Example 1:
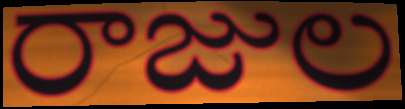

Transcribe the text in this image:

రాజుల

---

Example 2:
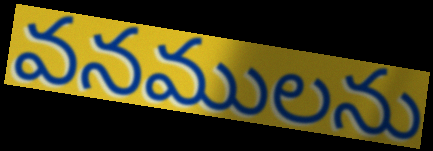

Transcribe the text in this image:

వనములను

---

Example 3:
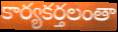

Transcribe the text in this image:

కార్యకర్తలంతా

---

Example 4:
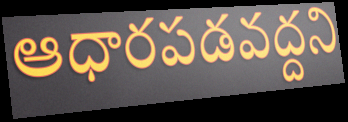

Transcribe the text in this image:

ఆధారపడవద్దని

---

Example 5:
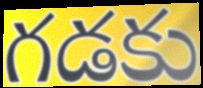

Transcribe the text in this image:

గడకు